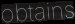
obtains